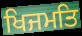
ਖਿਜਮਤਿ